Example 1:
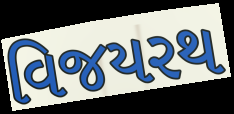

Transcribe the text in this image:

વિજયરથ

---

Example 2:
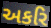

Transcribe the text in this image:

અકરિ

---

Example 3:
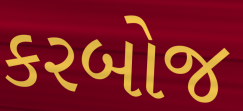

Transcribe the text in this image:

કરબોજ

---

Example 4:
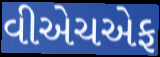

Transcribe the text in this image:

વીએચએફ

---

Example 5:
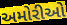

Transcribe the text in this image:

અમોરીઓ